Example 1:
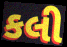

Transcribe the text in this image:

કલી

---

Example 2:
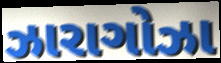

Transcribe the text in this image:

ઝારાગોઝા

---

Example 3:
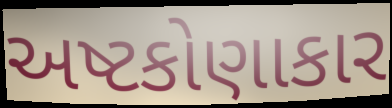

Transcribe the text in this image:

અષ્ટકોણાકાર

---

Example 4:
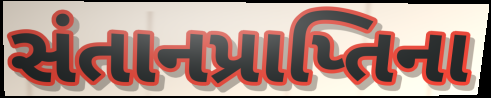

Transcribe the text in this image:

સંતાનપ્રાપ્તિના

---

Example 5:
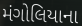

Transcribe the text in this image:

મંગોલિયાના